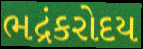
ભદ્રંકરોદય